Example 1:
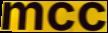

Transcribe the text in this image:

mcc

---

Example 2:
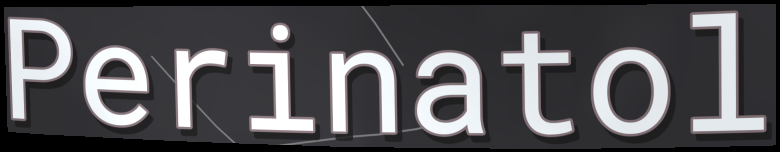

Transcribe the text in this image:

Perinatol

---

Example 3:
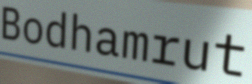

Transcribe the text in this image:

Bodhamrut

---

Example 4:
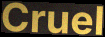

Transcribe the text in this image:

Cruel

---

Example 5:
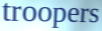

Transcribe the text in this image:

troopers